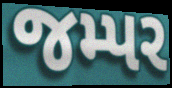
જમ્પર